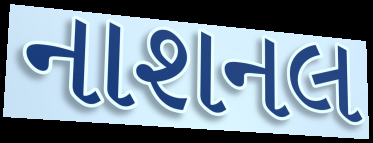
નાશનલ